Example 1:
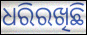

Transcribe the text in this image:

ଧରିରଖିଛି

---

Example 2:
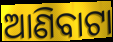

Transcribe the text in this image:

ଆଣିବାଟା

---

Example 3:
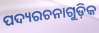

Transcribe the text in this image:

ପଦ୍ୟରଚନାଗୁଡ଼ିକ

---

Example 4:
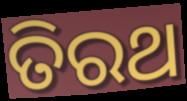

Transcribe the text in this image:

ତିରଥ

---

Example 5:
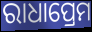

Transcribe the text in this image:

ରାଧାପ୍ରେମ